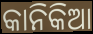
କାନିକିଆ